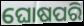
ଘୋଷପରି